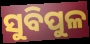
ସୁବିପୁଳ